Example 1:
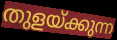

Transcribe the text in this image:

തുളയ്ക്കുന്ന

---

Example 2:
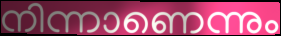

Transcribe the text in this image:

നിന്നാണെന്നും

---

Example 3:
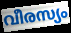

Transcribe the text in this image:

വീരസ്യം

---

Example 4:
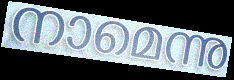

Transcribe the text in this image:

നാമെന്നു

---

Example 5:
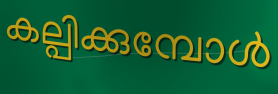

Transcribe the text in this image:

കല്പിക്കുമ്പോൾ